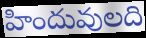
హిందువులది